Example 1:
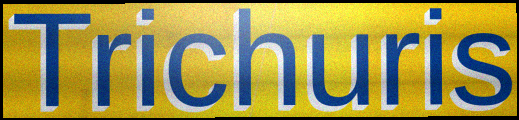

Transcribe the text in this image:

Trichuris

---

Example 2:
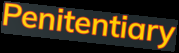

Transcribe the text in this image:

Penitentiary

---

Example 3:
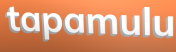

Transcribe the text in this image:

tapamulu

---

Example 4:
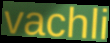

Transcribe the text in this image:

vachli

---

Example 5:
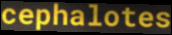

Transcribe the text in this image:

cephalotes